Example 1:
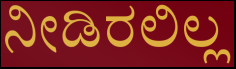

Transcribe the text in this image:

ನೀಡಿರಲಿಲ್ಲ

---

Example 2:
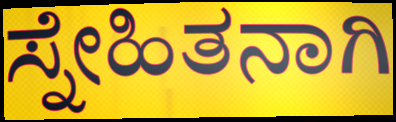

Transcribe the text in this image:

ಸ್ನೇಹಿತನಾಗಿ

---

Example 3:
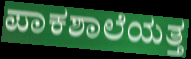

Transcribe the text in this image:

ಪಾಕಶಾಲೆಯತ್ತ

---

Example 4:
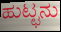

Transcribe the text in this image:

ಹುಟ್ಟನು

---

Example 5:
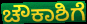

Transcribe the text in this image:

ಚೌಕಾಶಿಗೆ